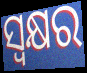
ସ୍ୱକ୍ଷର